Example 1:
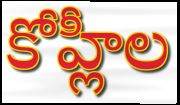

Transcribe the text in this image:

కోహ్లీల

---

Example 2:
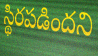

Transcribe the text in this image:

స్థిరపడిందని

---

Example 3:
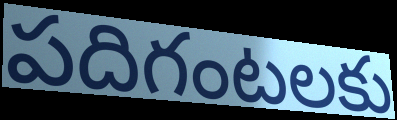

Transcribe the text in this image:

పదిగంటలకు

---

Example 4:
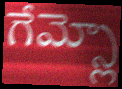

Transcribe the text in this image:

గేమ్స్లో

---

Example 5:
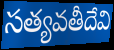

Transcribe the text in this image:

సత్యవతీదేవి